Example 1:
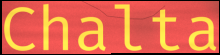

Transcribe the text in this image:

Chalta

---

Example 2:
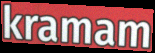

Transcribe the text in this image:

kramam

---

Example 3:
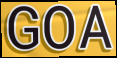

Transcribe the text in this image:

GOA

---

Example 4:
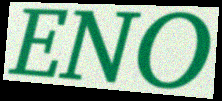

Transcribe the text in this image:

ENO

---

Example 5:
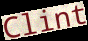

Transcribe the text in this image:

Clint